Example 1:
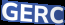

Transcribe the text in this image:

GERC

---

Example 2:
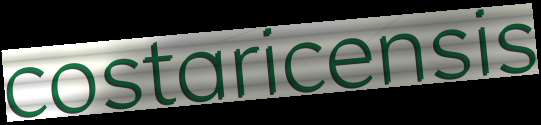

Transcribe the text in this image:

costaricensis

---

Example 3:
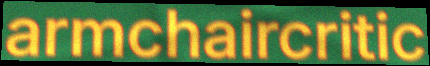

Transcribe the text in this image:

armchaircritic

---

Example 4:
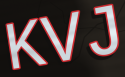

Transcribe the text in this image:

KVJ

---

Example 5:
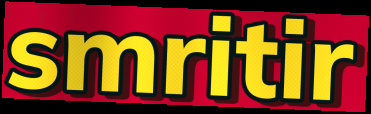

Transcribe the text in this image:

smritir